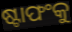
ଷ୍ଟାଫଂକୁ